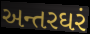
અન્તરઘરં